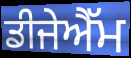
ਡੀਜੇਐੱਮ